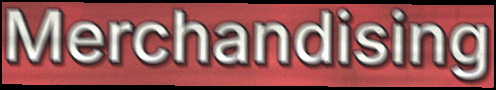
Merchandising